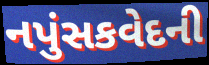
નપુંસકવેદની